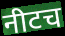
नीटच